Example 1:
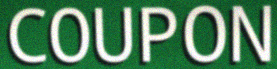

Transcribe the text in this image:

COUPON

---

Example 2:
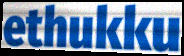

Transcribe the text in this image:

ethukku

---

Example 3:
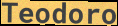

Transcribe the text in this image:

Teodoro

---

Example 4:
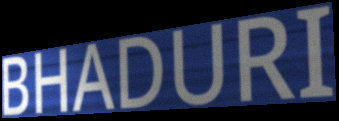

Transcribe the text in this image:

BHADURI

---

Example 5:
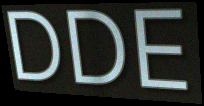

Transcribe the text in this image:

DDE